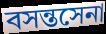
বসন্তসেনা